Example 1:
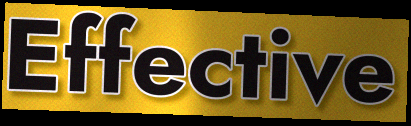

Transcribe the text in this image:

Effective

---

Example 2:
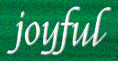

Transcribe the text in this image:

joyful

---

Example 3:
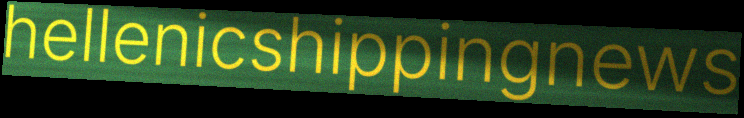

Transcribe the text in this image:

hellenicshippingnews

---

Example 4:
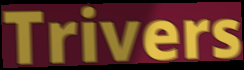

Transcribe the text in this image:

Trivers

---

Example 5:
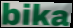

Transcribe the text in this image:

bika